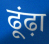
ढूंढ़ा